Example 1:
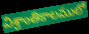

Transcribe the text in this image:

విశ్రాంతికాలములో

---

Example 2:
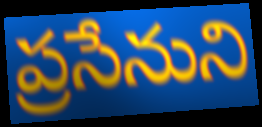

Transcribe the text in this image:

ప్రసేనుని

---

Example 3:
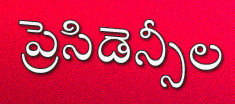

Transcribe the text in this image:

ప్రెసిడెన్సీల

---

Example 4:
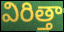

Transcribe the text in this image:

విరిత్తా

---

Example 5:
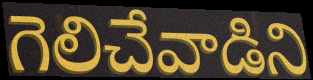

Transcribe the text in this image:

గెలిచేవాడిని